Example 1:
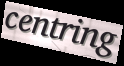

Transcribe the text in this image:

centring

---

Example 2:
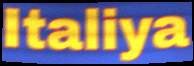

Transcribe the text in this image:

Italiya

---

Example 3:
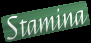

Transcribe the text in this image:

Stamina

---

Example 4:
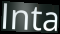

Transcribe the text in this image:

Inta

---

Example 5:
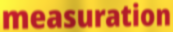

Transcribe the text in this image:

measuration